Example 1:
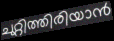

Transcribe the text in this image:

ചുറ്റിത്തിരിയാൻ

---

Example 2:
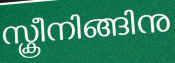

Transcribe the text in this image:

സ്ക്രീനിങ്ങിനു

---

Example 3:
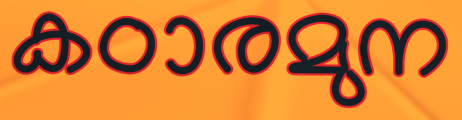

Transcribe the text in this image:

കഠാരമുന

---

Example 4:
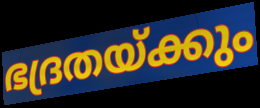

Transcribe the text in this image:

ഭദ്രതയ്ക്കും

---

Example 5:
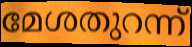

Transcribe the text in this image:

മേശതുറന്ന്